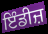
ਇੰਡੀਜ਼